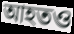
আহতও